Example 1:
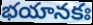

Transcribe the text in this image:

భయానకః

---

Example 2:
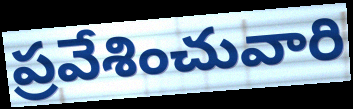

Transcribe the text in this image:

ప్రవేశించువారి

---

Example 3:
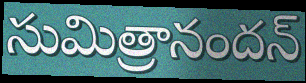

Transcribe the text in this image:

సుమిత్రానందన్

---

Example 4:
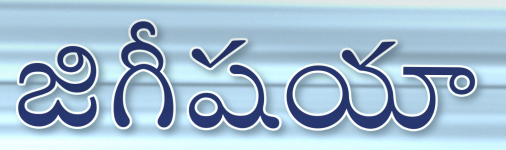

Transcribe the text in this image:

జిగీషయా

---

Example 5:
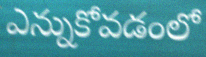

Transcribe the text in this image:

ఎన్నుకోవడంలో